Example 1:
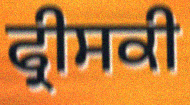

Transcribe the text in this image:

ਫ੍ਰੀਸਕੀ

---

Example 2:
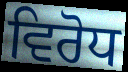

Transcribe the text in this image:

ਵਿਰੋਧ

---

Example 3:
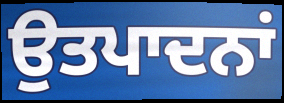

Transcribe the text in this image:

ਉਤਪਾਦਨਾਂ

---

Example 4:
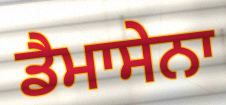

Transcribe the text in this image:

ਡੈਮਾਸੇਨਾ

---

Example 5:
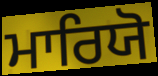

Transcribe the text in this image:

ਮਾਰਿਯੋ